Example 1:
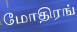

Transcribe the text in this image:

மோதிரங்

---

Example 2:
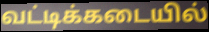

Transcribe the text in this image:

வட்டிக்கடையில்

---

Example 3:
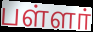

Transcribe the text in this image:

பள்ளர்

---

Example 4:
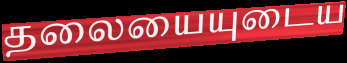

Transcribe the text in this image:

தலையையுடைய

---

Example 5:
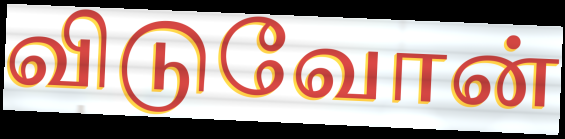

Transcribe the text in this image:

விடுவோன்